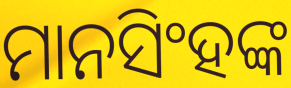
ମାନସିଂହଙ୍କ